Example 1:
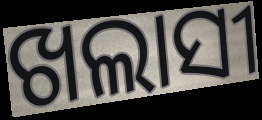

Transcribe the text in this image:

ଖଲାସୀ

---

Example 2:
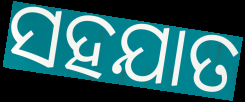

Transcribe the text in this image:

ସହଯାତ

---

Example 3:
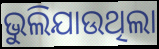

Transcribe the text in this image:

ଭୁଲିଯାଉଥିଲା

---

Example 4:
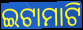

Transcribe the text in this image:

ଇଟାମାଟି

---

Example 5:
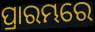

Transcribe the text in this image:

ପ୍ରାରମ୍ଭରେ